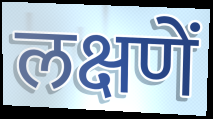
लक्षणें